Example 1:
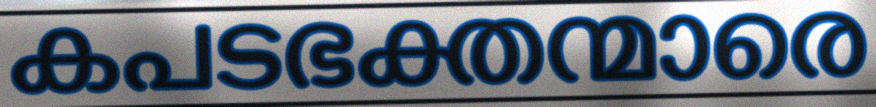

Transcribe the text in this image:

കപടഭക്തന്മാരെ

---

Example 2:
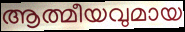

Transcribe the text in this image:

ആത്മീയവുമായ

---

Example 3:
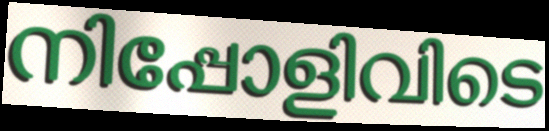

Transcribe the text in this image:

നിപ്പോളിവിടെ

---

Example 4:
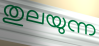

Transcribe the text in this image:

തുലയുന്ന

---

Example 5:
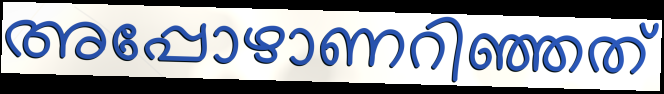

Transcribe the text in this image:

അപ്പോഴാണറിഞ്ഞത്